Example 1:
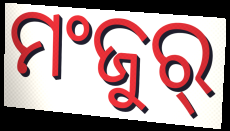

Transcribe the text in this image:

ମଂଜୁର୍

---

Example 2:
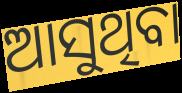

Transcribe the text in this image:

ଆସୁଥିବା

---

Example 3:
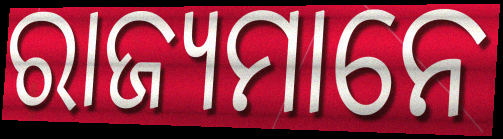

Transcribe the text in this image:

ରାଜ୍ୟମାନେ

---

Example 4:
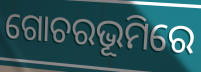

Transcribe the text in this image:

ଗୋଚରଭୂମିରେ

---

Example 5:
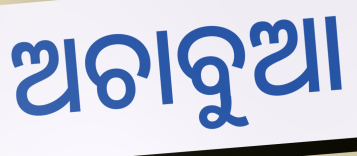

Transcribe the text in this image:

ଅଚାବୁଆ